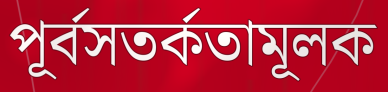
পূর্বসতর্কতামূলক